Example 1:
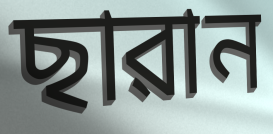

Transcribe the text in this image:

ছাৱান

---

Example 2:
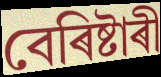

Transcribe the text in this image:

বেৰিষ্টাৰী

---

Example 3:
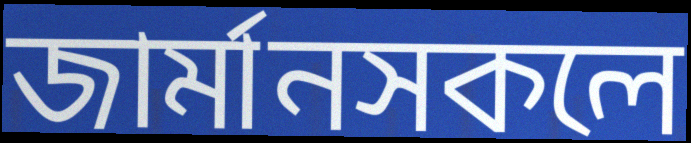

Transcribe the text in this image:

জাৰ্মানসকলে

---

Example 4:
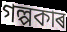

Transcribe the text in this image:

গল্পকাৰ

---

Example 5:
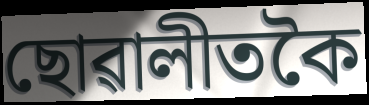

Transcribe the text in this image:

ছোৱালীতকৈ